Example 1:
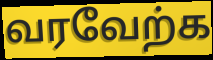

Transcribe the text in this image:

வரவேற்க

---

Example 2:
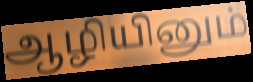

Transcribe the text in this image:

ஆழியினும்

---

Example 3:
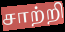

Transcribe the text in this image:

சாற்றி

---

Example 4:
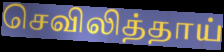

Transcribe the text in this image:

செவிலித்தாய்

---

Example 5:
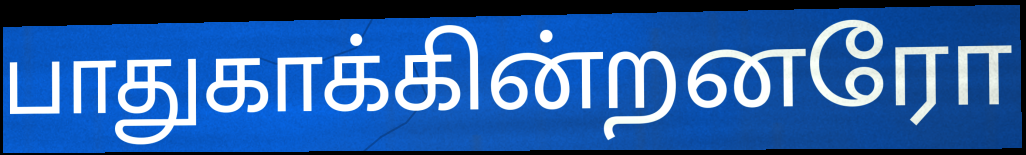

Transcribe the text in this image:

பாதுகாக்கின்றனரோ